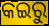
କଇରୁ